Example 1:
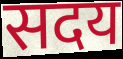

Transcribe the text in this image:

सदय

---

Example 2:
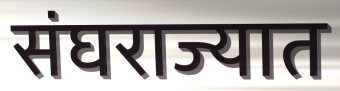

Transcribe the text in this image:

संघराज्यात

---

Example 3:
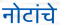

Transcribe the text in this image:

नोटांचे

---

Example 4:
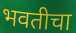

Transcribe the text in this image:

भवतीचा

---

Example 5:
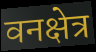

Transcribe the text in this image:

वनक्षेत्र